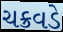
ચક્રવડે